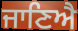
ਜਾਣਿਐ